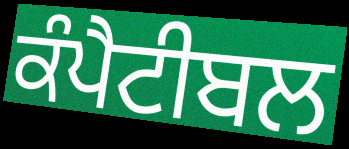
ਕੰਪੈਟੀਬਲ